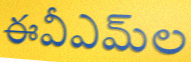
ఈవీఎమ్‌ల